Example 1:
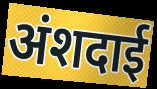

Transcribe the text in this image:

अंशदाई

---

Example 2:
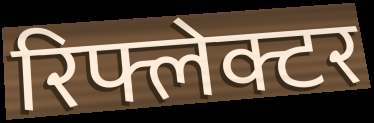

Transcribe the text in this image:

रिफ्लेक्टर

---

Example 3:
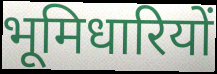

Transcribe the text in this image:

भूमिधारियों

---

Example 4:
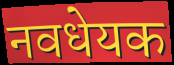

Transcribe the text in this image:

नवधेयक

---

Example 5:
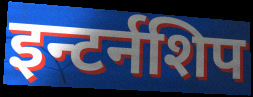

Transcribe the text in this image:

इन्टर्नशिप